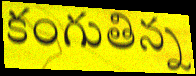
కంగుతిన్న